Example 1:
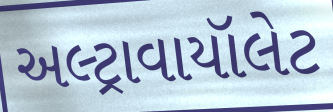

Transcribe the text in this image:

અલ્ટ્રાવાયૉલેટ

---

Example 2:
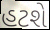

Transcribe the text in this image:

હટશે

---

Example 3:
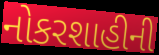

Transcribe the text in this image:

નોકરશાહીની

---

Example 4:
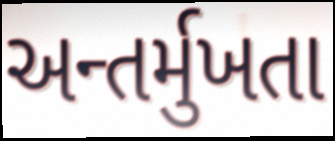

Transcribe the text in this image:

અન્તર્મુખતા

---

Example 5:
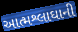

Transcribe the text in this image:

આત્મશ્લાઘાની